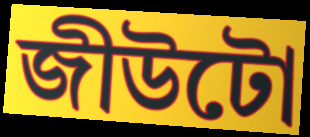
জীউটো